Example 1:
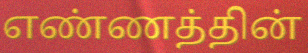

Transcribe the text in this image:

எண்ணத்தின்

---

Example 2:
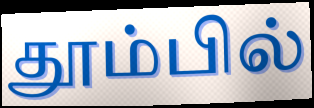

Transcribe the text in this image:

தூம்பில்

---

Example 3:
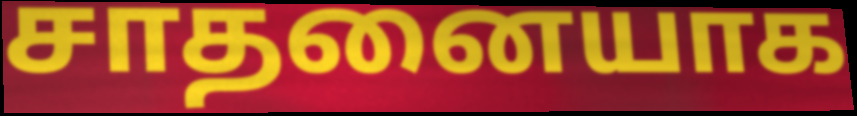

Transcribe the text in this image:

சாதனையாக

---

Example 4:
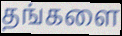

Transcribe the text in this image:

தங்களை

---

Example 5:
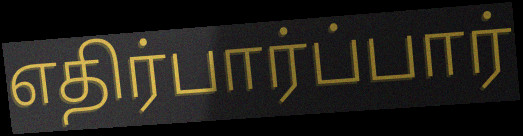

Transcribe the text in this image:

எதிர்பார்ப்பார்